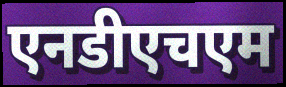
एनडीएचएम